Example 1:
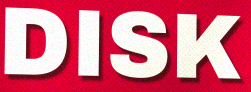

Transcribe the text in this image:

DISK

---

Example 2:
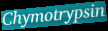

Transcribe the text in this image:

Chymotrypsin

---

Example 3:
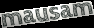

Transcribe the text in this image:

mausam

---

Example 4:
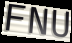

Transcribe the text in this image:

FNU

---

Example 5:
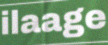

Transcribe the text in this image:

ilaage